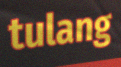
tulang